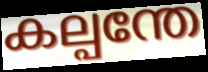
കല്പന്തേ